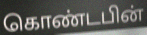
கொண்டபின்